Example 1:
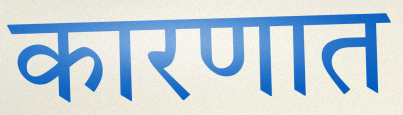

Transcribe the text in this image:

कारणात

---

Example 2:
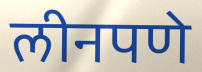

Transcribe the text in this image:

लीनपणे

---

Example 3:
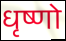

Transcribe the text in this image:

धृष्णो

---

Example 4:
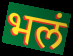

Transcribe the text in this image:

भलं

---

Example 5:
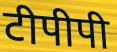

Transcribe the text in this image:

टीपीपी